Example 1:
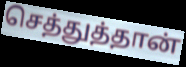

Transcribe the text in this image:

செத்துத்தான்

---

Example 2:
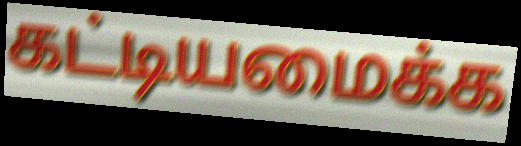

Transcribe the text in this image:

கட்டியமைக்க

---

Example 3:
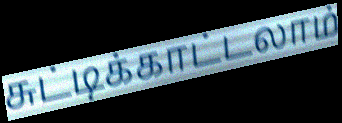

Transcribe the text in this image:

சுட்டிக்காட்டலாம்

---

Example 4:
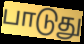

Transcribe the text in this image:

பாடுது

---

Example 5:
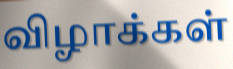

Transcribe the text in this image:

விழாக்கள்